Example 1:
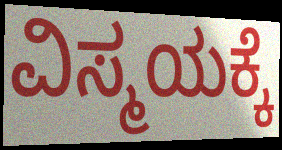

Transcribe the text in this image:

ವಿಸ್ಮಯಕ್ಕೆ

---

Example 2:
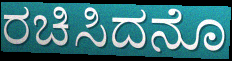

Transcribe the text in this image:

ರಚಿಸಿದನೊ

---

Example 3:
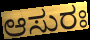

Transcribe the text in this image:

ಆಸುರಃ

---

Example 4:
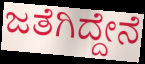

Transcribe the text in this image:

ಜತೆಗಿದ್ದೇನೆ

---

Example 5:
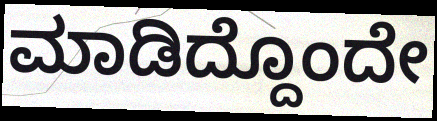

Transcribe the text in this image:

ಮಾಡಿದ್ದೊಂದೇ